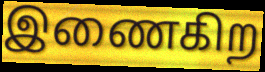
இணைகிற